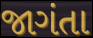
જાગંતા